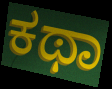
ಕಥಾ